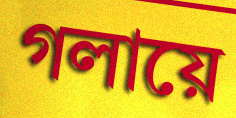
গলায়ে